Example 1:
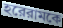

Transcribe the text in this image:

হরেরামকে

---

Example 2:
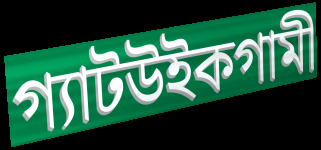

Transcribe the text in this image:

গ্যাটউইকগামী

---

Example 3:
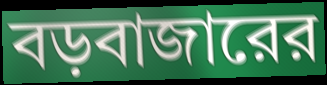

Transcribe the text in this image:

বড়বাজারের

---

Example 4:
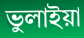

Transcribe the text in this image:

ভুলাইয়া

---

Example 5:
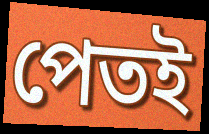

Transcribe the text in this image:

পেতই